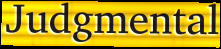
Judgmental